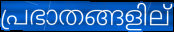
പ്രഭാതങ്ങളില്